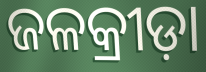
ଜଳକ୍ରୀଡ଼ା